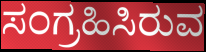
ಸಂಗ್ರಹಿಸಿರುವ